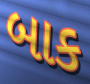
બાક